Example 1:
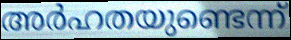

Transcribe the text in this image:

അർഹതയുണ്ടെന്ന്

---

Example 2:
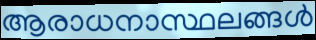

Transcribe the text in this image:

ആരാധനാസ്ഥലങ്ങൾ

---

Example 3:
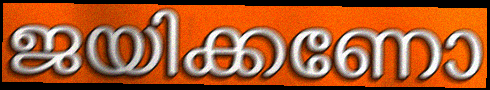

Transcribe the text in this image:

ജയിക്കണോ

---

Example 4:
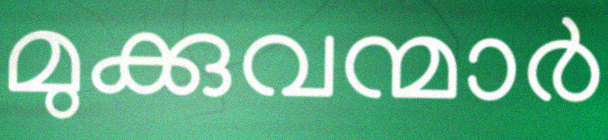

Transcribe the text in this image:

മുക്കുവന്മാർ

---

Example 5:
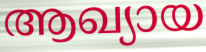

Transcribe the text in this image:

ആഖ്യായ